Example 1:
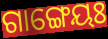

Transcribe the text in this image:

ଗାଙ୍ଗେୟଃ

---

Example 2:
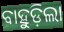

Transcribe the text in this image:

ବାହୁଡ଼ିଲା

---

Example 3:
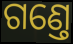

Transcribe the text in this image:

ଗଣ୍ତେ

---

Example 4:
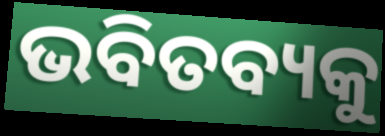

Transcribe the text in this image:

ଭବିତବ୍ୟକୁ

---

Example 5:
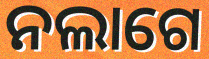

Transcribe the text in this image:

ନଲାଗେ